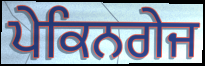
ਪੇਕਿਨਗੇਜ